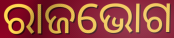
ରାଜଭୋଗ